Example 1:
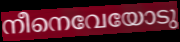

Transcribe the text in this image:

നീനെവേയോടു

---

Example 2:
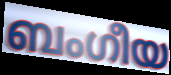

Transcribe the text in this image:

ബംഗീയ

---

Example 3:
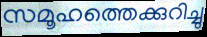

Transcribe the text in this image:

സമൂഹത്തെക്കുറിച്ചു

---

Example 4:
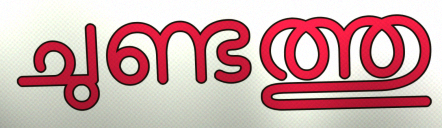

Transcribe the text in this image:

ചുണ്ടത്തു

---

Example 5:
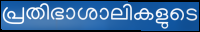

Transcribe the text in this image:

പ്രതിഭാശാലികളുടെ